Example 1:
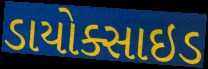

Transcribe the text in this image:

ડાયોક્સાઇડ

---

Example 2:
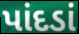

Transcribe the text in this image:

પાંદડાં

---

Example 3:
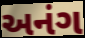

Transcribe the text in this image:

અનંગ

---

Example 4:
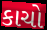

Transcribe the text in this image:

કાચો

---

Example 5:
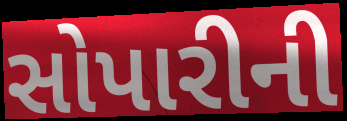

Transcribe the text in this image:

સોપારીની